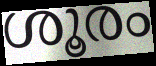
ശൂരം